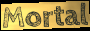
Mortal